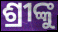
ଶ୍ରୀଙ୍କୁ